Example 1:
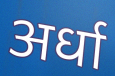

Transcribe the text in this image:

अर्धा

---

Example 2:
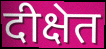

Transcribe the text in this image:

दीक्षेत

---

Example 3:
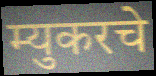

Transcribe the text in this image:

म्युकरचे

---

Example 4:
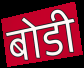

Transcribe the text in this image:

बोडी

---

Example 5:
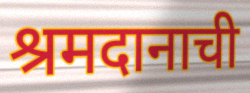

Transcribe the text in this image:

श्रमदानाची